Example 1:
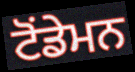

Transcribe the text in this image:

ਟੋਂਡੇਮਨ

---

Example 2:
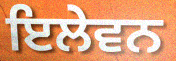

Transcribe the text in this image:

ਇਲੇਵਨ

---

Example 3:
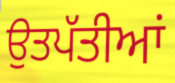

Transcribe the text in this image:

ਉਤਪੱਤੀਆਂ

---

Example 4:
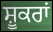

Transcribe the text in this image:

ਸ਼ੂਕਰਾਂ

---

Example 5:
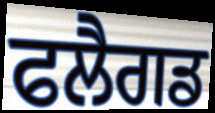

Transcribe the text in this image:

ਫਲੈਗਡ